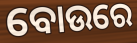
ବୋଉରେ